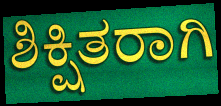
ಶಿಕ್ಷಿತರಾಗಿ